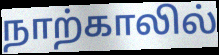
நாற்காலில்